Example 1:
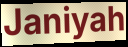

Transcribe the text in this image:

Janiyah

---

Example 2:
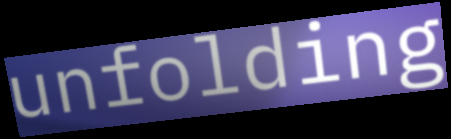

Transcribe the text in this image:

unfolding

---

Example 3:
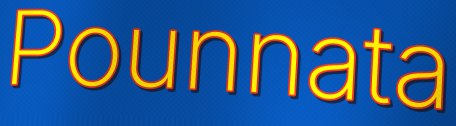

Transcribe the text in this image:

Pounnata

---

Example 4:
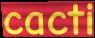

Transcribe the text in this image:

cacti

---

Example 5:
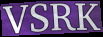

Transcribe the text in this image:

VSRK